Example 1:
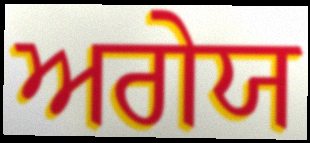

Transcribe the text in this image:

ਅਗੇਯ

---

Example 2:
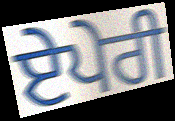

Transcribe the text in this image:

ਏਪੇਰੀ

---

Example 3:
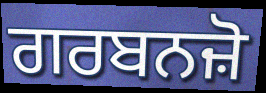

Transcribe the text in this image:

ਗਰਬਨਜ਼ੋ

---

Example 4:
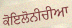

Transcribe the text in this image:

ਕੋਇਲੋਨੀਚੀਆ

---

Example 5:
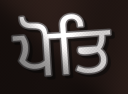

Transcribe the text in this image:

ਪੋਤਿ